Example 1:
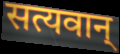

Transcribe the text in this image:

सत्यवान्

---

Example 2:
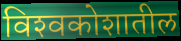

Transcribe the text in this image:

विश्वकोशातील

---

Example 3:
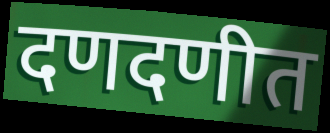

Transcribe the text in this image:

दणदणीत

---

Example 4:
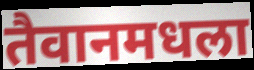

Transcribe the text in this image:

तैवानमधला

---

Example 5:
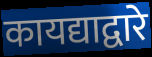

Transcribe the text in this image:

कायद्याद्वारे